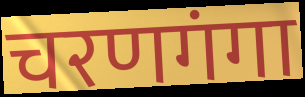
चरणगंगा